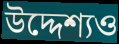
উদ্দেশ্যও